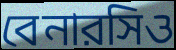
বেনারসিও